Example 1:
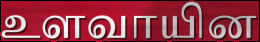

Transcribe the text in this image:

உளவாயின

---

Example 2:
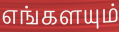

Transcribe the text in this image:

எங்களயும்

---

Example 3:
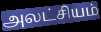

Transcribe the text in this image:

அலட்சியம்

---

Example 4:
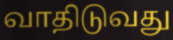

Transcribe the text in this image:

வாதிடுவது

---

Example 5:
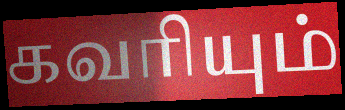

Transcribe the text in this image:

கவரியும்